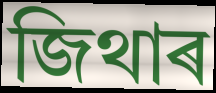
জিথাৰ